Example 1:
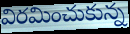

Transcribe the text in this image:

విరమించుకున్న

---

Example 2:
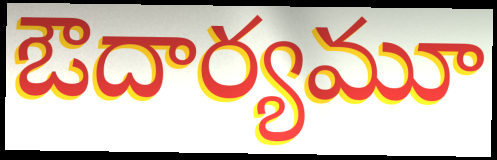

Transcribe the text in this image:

ఔదార్యమూ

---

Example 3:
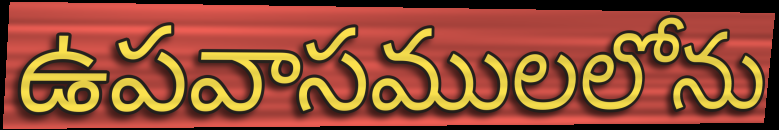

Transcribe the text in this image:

ఉపవాసములలోను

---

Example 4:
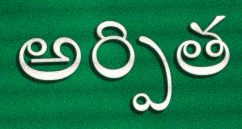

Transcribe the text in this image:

అర్పిత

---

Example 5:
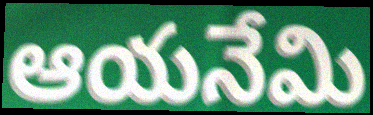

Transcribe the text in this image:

ఆయనేమి